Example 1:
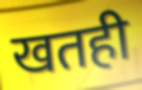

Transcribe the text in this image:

खतही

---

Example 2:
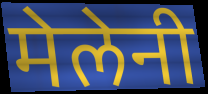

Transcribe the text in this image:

मेलेनी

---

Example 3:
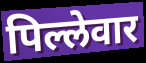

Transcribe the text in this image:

पिल्लेवार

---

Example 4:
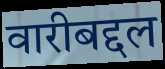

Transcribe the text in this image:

वारीबद्दल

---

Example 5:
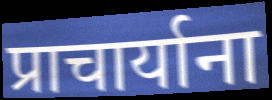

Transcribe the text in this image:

प्राचार्याना